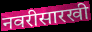
नवरीसारखी